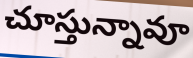
చూస్తున్నావూ